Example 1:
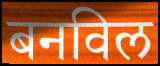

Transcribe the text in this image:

बनविल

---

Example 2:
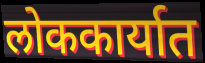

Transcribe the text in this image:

लोककार्यात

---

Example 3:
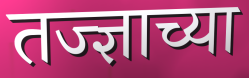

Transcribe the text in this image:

तज्ज्ञाच्या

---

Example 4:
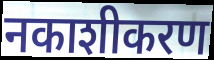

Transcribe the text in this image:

नकाशीकरण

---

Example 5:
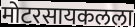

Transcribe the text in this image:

मोटरसायकलला